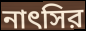
নাৎসির